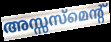
അസ്സസ്മെന്റ്